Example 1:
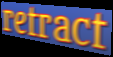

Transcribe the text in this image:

retract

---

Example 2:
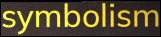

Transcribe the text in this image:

symbolism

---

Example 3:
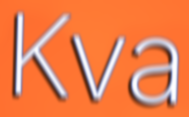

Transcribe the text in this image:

Kva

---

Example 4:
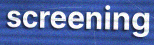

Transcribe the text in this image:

screening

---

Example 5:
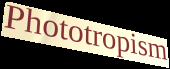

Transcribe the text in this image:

Phototropism